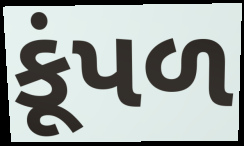
કૂંપળ